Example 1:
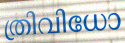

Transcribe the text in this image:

ത്രിവിധോ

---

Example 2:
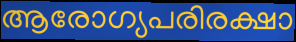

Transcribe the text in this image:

ആരോഗ്യപരിരക്ഷാ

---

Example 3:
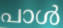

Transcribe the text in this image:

പാൾ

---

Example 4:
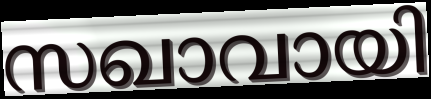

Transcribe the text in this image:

സഖാവായി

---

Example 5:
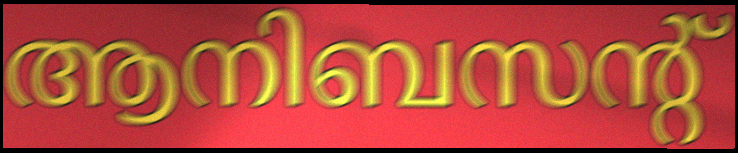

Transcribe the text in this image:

ആനിബസന്റ്